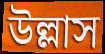
উল্লাস